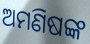
ଅମଣିଷଙ୍କ